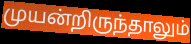
முயன்றிருந்தாலும்